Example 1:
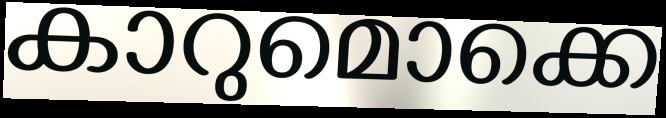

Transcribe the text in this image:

കാറുമൊക്കെ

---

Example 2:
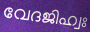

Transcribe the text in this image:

വേദജിഹ്വഃ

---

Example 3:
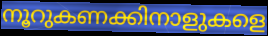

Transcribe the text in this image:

നൂറുകണക്കിനാളുകളെ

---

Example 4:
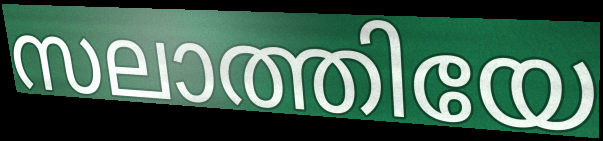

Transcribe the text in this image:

സലാത്തിയേ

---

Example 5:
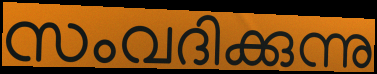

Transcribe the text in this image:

സംവദിക്കുന്നു